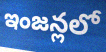
ఇంజన్లలో